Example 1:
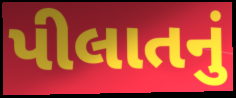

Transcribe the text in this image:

પીલાતનું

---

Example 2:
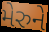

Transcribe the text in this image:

મેરુને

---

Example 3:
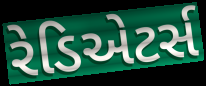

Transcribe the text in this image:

રેડિએટર્સ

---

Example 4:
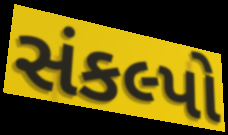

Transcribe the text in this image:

સંકલ્પો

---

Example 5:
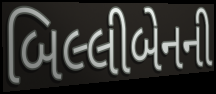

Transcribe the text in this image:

બિલ્લીબેનની